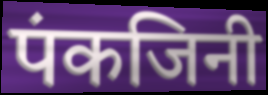
पंकजिनी